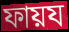
ফায়য